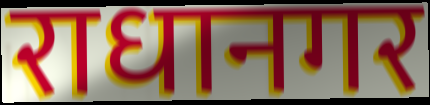
राधानगर